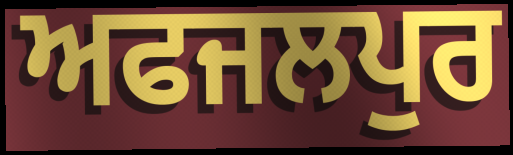
ਅਫਜਲਪੁਰ